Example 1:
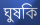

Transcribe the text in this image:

ঘুষকি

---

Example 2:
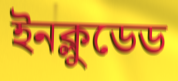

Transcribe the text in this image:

ইনক্লুডেড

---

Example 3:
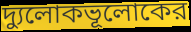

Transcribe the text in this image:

দ্যুলোকভূলোকের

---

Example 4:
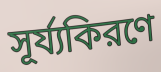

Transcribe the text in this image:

সূর্য্যকিরণে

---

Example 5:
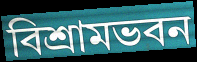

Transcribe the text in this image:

বিশ্রামভবন